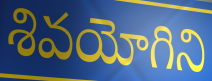
శివయోగిని